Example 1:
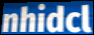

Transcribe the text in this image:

nhidcl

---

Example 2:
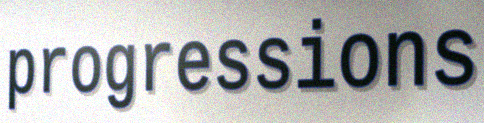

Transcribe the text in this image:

progressions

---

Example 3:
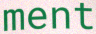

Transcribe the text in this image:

ment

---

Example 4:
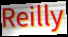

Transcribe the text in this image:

Reilly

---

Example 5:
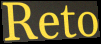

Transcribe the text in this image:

Reto